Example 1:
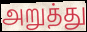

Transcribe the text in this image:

அறுத்து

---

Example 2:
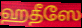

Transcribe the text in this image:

ஹதீஸே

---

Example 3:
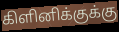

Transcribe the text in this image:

கிளினிக்குக்கு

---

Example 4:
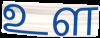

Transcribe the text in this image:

உள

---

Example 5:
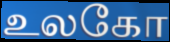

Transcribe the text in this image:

உலகோ